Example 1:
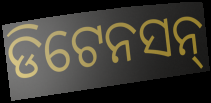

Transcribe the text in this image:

ଡିଟେନସନ୍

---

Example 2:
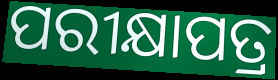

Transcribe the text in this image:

ପରୀକ୍ଷାପତ୍ର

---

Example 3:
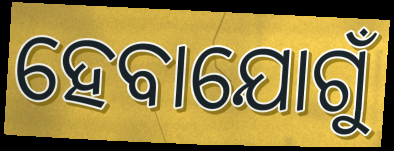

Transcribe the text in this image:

ହେବାଯୋଗୁଁ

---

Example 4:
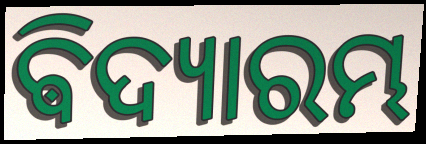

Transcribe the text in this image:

ଵିଦ୍ୟାରମ୍ଭ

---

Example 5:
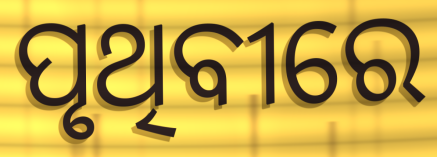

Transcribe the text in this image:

ପୃଥିବୀରେ